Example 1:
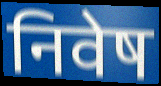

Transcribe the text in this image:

निवेष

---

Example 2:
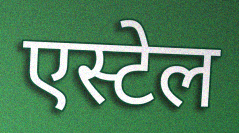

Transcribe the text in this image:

एस्टेल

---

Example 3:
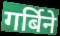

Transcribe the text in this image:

गर्बिने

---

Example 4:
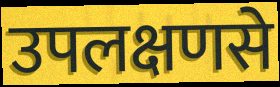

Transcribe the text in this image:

उपलक्षणसे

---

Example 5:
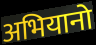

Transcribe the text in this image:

अभियानो